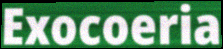
Exocoeria